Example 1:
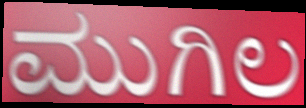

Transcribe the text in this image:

ಮುಗಿಲ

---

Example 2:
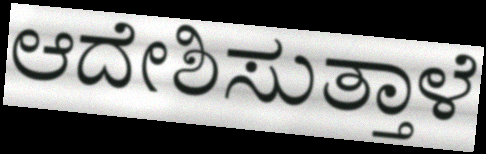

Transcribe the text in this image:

ಆದೇಶಿಸುತ್ತಾಳೆ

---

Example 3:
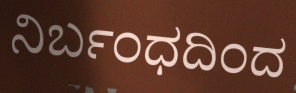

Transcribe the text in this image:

ನಿರ್ಬಂಧದಿಂದ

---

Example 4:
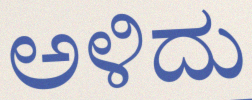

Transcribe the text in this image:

ಅಳಿದು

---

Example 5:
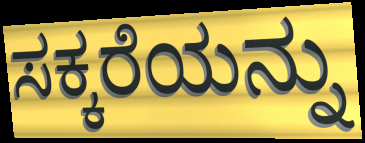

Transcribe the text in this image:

ಸಕ್ಕರೆಯನ್ನು